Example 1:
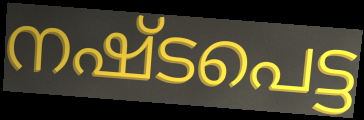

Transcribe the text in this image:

നഷ്ടപെട്ട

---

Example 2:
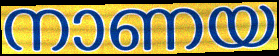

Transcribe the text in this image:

നാണയ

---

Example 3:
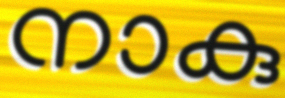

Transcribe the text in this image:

നാകു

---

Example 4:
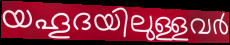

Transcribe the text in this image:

യഹൂദയിലുള്ളവർ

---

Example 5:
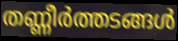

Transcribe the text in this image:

തണ്ണീർത്തടങ്ങൾ